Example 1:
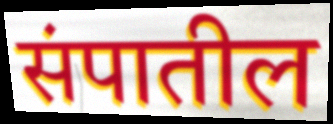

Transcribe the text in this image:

संपातील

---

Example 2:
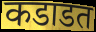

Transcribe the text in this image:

कडाडत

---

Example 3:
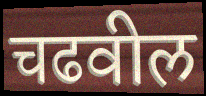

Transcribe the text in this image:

चढवील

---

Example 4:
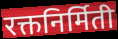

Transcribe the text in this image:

रक्तनिर्मिती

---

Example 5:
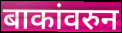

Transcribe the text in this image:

बाकांवरुन